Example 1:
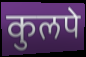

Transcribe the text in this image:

कुलपे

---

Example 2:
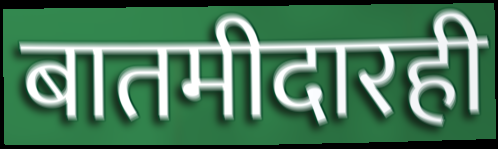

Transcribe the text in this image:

बातमीदारही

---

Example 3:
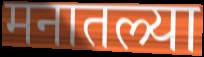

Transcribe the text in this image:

मनातल्या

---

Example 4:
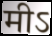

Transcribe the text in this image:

मीऽ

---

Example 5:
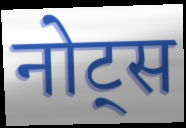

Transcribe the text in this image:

नोट्‌स